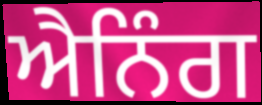
ਐਨਿੰਗ